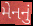
મેનનું